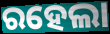
ରହେଲା